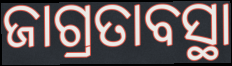
ଜାଗ୍ରତାବସ୍ଥା